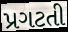
પ્રગટતી